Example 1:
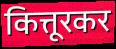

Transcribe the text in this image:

कित्तूरकर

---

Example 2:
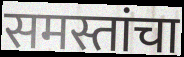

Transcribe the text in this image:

समस्तांचा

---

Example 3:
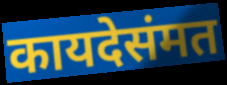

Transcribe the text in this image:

कायदेसंमत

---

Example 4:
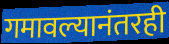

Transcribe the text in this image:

गमावल्यानंतरही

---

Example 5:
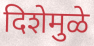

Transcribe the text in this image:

दिशेमुळे